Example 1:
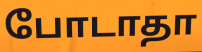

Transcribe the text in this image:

போடாதா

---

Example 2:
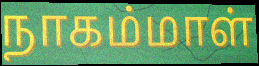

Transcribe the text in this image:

நாகம்மாள்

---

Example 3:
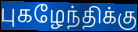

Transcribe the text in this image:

புகழேந்திக்கு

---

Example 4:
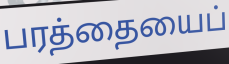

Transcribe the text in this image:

பரத்தையைப்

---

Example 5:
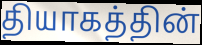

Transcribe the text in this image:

தியாகத்தின்